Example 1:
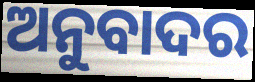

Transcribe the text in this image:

ଅନୁବାଦର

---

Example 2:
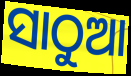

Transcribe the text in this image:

ସାଠୁଆ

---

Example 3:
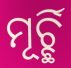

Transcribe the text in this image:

ମୂର୍ଚ୍ଛି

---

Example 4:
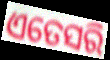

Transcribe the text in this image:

ଏତେସରି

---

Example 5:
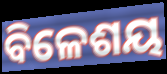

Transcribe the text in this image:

ବିଳେଶୟ